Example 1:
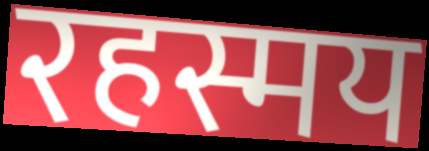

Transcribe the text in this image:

रहस्मय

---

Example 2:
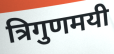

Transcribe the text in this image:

त्रिगुणमयी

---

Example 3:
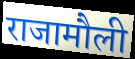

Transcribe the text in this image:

राजामौली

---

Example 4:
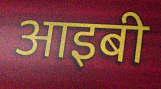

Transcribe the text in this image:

आइबी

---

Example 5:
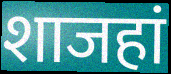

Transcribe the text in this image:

शाजहां